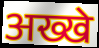
अख्खे